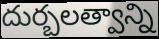
దుర్బలత్వాన్ని